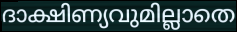
ദാക്ഷിണ്യവുമില്ലാതെ